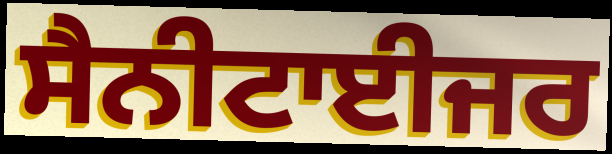
ਸੈਨੀਟਾਈਜਰ